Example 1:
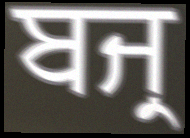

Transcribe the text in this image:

ਬਜ੍ਰ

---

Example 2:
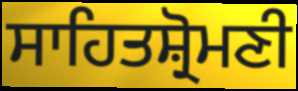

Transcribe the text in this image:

ਸਾਹਿਤਸ਼੍ਰੋਮਣੀ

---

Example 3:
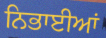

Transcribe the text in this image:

ਨਿਭਾਈਆਂ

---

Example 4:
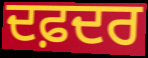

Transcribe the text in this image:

ਦਫ਼ਦਰ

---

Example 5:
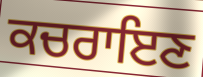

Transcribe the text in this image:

ਕਚਰਾਇਣ